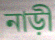
নাড়ী